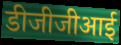
डीजीजीआई